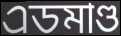
এডমাণ্ড